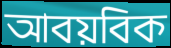
আবয়বিক